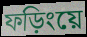
ফড়িংয়ে